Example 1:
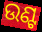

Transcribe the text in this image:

ଉଣ୍ଟ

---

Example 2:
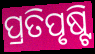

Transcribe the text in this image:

ପ୍ରତିପୃଷ୍ଟି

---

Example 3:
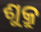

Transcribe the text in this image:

ଶୁକ୍ରୁ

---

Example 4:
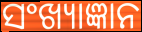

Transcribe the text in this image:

ସଂଖ୍ୟାଜ୍ଞାନ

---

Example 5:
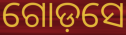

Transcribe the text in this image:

ଗୋଡ଼ସେ